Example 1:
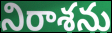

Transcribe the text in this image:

నిరాశను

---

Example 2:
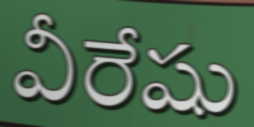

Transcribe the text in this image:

వీరేషు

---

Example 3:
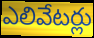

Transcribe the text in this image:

ఎలివేటర్లు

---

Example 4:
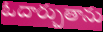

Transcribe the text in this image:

ఓదార్చుతాను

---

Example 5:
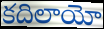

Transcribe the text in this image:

కదిలాయో